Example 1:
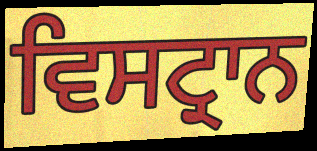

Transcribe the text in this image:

ਵਿਸਟ੍ਰਾਨ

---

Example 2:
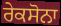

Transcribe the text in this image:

ਰੇਕਸੋਨਾ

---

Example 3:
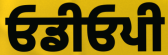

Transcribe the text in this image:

ਓਡੀਓਪੀ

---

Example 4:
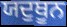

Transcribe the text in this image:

ਯਦੁਥੂਨ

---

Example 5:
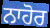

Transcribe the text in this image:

ਨਾਹੋਰ